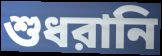
শুধরানি